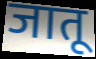
जातू